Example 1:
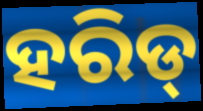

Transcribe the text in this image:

ହରିଡ୍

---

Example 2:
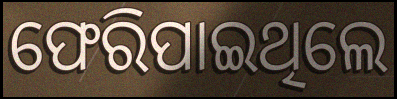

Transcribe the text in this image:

ଫେରିପାଇଥିଲେ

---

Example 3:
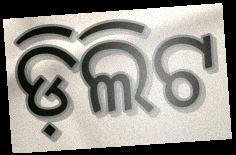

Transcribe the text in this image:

ଡ଼ିଲିଟ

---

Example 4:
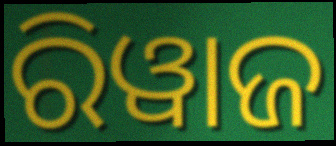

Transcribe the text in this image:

ରିୱାଜ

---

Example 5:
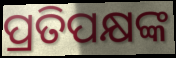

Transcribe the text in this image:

ପ୍ରତିପକ୍ଷଙ୍କ